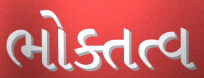
ભોક્તત્વ